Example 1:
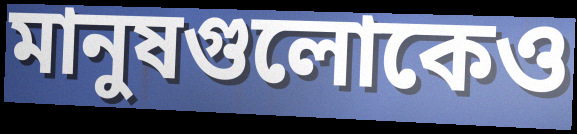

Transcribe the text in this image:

মানুষগুলোকেও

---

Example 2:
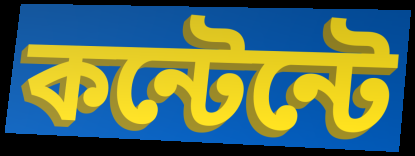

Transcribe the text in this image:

কন্টেন্টে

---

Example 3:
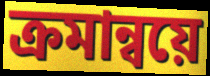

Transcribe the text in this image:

ক্রমান্বয়ে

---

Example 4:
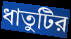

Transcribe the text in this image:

ধাতুটির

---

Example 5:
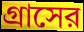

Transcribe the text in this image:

গ্রাসের